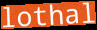
lothal